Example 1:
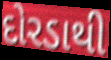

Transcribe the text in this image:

દોરડાથી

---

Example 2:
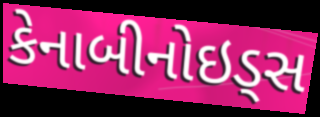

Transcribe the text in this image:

કેનાબીનોઇડ્સ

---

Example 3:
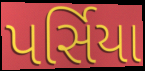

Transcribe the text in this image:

પર્સિયા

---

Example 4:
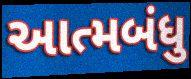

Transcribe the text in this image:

આત્મબંધુ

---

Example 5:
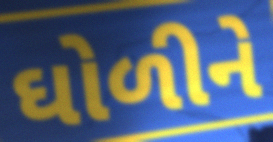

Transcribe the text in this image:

ઘોળીને